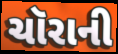
ચૉરાની